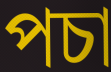
পচা